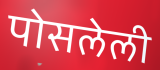
पोसलेली